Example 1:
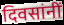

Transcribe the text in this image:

दिवसांनीं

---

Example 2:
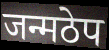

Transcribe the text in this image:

जन्मठेप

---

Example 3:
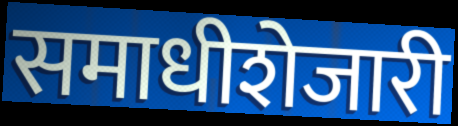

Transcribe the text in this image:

समाधीशेजारी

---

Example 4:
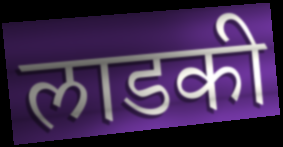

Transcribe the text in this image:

लाडकी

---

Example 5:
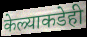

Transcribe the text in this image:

केल्याकडेही